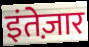
इंतेज़ार